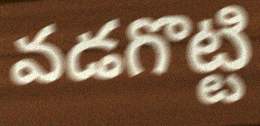
వడగొట్టి